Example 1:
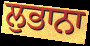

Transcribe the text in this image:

ਲੁਭਾਨਾ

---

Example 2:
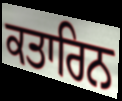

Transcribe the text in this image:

ਕਤਾਰਿਨ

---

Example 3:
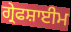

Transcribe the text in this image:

ਗ੍ਰੇਫਸ਼ਾਈਮ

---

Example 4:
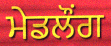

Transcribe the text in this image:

ਮੇਡਲੌਂਗ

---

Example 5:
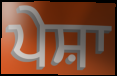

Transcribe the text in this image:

ਪੇਸ਼ਾ